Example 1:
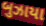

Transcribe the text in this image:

બુઝાયા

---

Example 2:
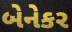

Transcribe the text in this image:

બેનેકર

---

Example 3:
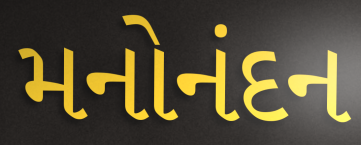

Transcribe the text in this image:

મનોનંદન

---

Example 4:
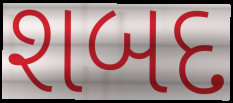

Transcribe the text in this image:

શબદ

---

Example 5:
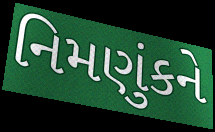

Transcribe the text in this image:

નિમણુંકને